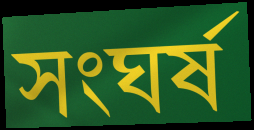
সংঘৰ্ষ